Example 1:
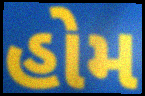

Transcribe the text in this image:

હોમ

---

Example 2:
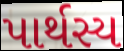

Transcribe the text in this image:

પાર્થસ્ય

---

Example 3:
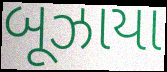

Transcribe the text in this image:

બૂઝાયા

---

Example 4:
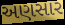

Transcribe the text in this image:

અણસાર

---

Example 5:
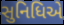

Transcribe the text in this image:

સુનિધિએ